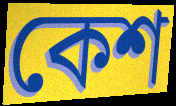
কেশ